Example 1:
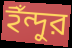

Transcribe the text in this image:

ইঁন্দুর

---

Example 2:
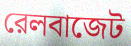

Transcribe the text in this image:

রেলবাজেট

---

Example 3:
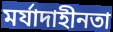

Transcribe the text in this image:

মর্যাদাহীনতা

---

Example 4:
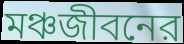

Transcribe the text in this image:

মঞ্চজীবনের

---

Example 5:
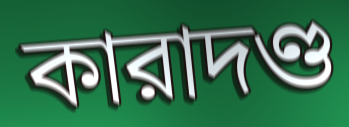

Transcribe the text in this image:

কারাদণ্ড